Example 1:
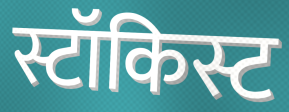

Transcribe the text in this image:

स्टॉकिस्ट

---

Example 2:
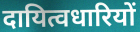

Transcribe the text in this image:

दायित्वधारियों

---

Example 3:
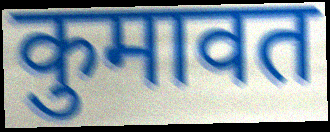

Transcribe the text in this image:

कुमावत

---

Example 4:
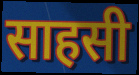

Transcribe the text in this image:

साहसी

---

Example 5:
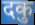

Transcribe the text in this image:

दकु